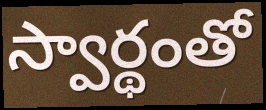
స్వార్థంతో